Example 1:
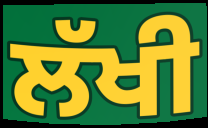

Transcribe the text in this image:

ਲੱਖੀ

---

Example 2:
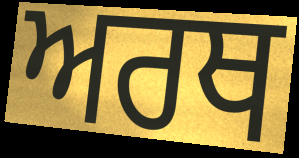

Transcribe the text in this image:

ਅਰਥ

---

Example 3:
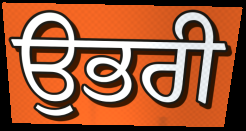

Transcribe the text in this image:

ਉਭਰੀ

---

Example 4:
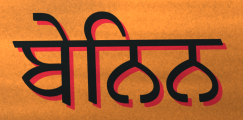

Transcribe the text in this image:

ਬੇਨਿਨ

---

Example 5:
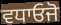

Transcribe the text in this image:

ਵਧਾਓਜੋ